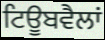
ਟਿਊਬਵੈਲਾਂ